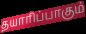
தயாரிப்பாகும்